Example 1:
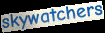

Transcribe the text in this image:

skywatchers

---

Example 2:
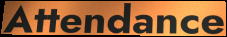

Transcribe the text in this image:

Attendance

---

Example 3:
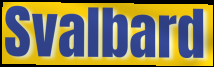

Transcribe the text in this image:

Svalbard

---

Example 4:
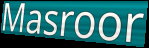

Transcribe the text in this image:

Masroor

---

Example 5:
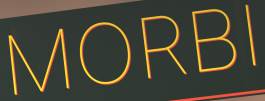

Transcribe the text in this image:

MORBI